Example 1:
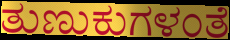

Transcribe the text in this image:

ತುಣುಕುಗಳಂತೆ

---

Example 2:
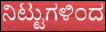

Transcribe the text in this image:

ನಿಟ್ಟುಗಳಿಂದ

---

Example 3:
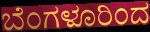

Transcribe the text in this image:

ಬೆಂಗಳೂರಿಂದ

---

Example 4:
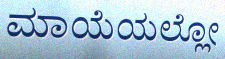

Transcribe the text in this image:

ಮಾಯೆಯಲ್ಲೋ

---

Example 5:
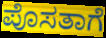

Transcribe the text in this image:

ಪೊಸತಾಗೆ